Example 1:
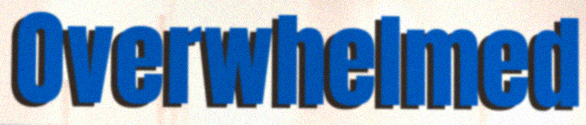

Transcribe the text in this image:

Overwhelmed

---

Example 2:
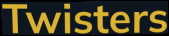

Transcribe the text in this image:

Twisters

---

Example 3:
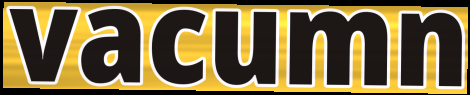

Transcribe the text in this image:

vacumn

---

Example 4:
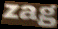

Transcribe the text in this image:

zag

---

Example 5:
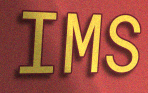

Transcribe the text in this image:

IMS